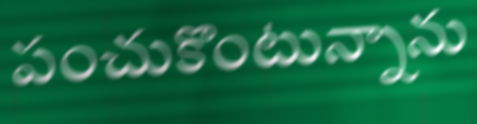
పంచుకొంటున్నాను